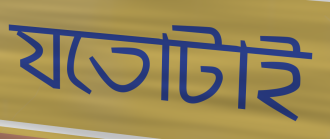
যতোটাই